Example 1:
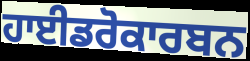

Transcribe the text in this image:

ਹਾਈਡਰੋਕਾਰਬਨ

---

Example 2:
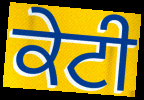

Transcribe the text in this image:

ਕੇਟੀ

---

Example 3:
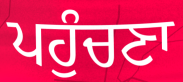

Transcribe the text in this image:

ਪਹੁੰਚਣਾ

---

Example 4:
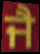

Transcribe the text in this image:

ਜੈ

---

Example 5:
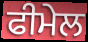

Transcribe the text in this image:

ਫੀਮੇਲ